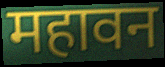
महावन